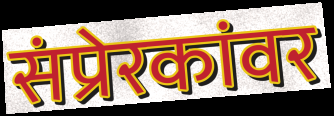
संप्रेरकांवर